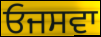
ਓਜਸਵਾ